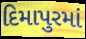
દિમાપુરમાં